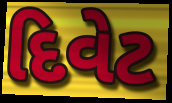
દિવેટ